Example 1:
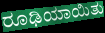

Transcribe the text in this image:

ರೂಢಿಯಾಯಿತು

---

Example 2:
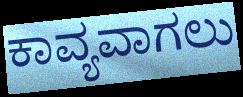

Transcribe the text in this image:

ಕಾವ್ಯವಾಗಲು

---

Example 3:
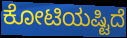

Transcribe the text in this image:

ಕೋಟಿಯಷ್ಟಿದೆ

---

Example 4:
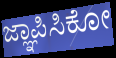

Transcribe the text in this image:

ಜ್ಞಾಪಿಸಿಕೋ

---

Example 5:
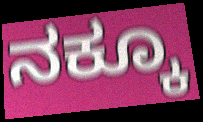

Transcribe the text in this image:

ನಕ್ಕೂ